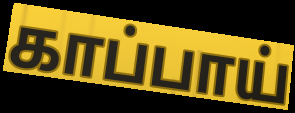
காப்பாய்